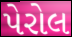
પેરોલ